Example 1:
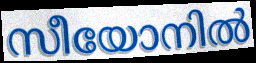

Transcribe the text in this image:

സീയോനിൽ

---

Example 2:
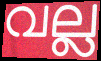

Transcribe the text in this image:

വല്ല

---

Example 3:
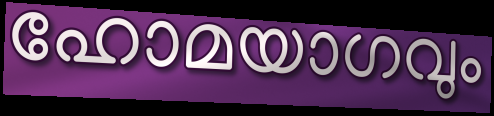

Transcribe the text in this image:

ഹോമയാഗവും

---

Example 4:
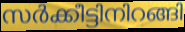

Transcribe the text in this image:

സർക്കീട്ടിനിറങ്ങി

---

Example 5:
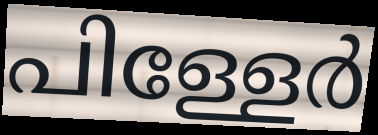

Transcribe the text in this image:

പിള്ളേർ